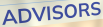
ADVISORS